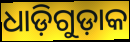
ଧାଡ଼ିଗୁଡ଼ାକ